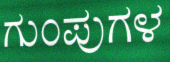
ಗುಂಪುಗಳ